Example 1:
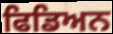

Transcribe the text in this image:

ਫਿਡਿਅਨ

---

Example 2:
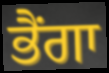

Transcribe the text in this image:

ਭੈਂਗਾ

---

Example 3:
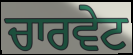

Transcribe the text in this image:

ਚਾਰਵੇਟ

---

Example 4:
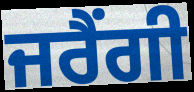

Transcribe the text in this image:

ਜਰੈਂਗੀ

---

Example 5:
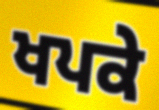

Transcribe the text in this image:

ਖਪਕੇ